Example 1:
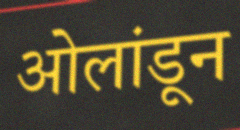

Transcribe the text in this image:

ओलांडून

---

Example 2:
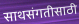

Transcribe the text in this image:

साथसंगतीसाठी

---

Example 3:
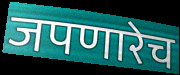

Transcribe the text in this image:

जपणारेच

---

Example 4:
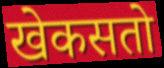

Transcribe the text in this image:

खेकसतो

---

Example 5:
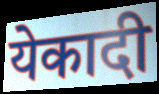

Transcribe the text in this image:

येकादी